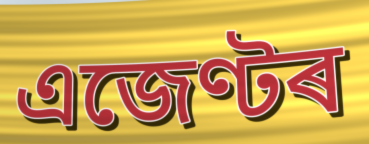
এজেণ্টৰ